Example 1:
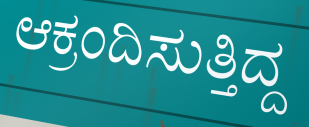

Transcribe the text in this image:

ಆಕ್ರಂದಿಸುತ್ತಿದ್ದ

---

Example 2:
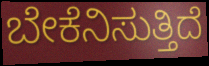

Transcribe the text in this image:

ಬೇಕೆನಿಸುತ್ತಿದೆ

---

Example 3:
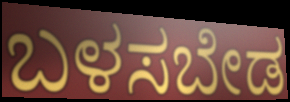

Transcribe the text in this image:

ಬಳಸಬೇಡ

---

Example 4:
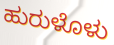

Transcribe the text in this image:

ಹುರುಳೊಳು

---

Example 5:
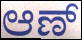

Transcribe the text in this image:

ಆಣ್